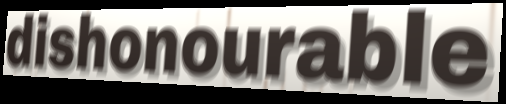
dishonourable